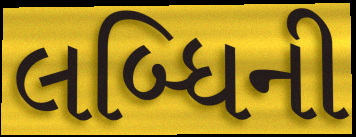
લબ્ધિની